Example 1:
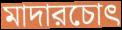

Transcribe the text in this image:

মাদারচোৎ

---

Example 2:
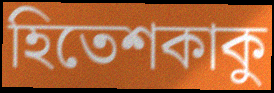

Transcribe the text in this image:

হিতেশকাকু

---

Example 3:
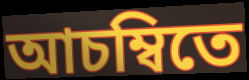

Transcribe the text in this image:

আচম্বিতে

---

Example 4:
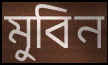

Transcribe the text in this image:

মুবিন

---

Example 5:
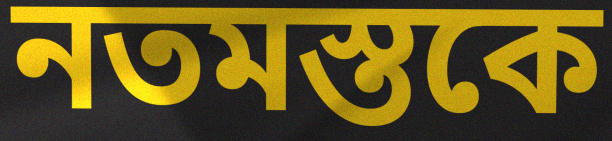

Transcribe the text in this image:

নতমস্তকে